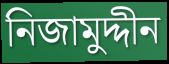
নিজামুদ্দীন